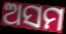
ଅସମ